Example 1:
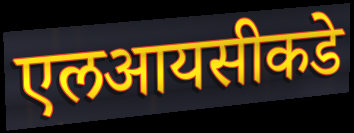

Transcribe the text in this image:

एलआयसीकडे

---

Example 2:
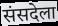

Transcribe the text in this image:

संसदेला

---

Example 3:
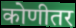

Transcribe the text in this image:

कोणीतर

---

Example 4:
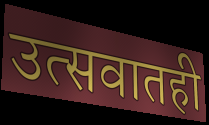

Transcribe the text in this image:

उत्सवातही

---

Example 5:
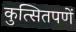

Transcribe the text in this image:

कुत्सितपणें